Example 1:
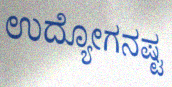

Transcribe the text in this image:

ಉದ್ಯೋಗನಷ್ಟ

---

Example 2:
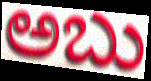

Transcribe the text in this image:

ಅಬು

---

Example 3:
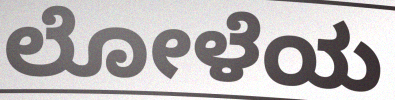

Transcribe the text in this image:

ಲೋಳೆಯ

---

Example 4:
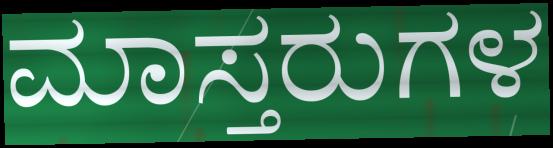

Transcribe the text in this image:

ಮಾಸ್ತರುಗಳ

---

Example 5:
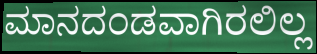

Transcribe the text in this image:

ಮಾನದಂಡವಾಗಿರಲಿಲ್ಲ